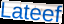
Lateef